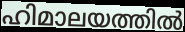
ഹിമാലയത്തിൽ